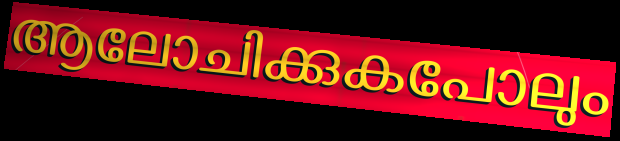
ആലോചിക്കുകപോലും